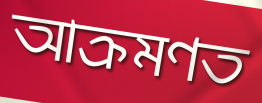
আক্ৰমণত